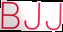
BJJ